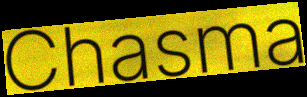
Chasma